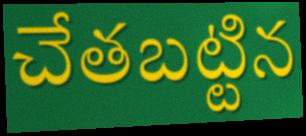
చేతబట్టిన